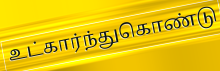
உட்கார்ந்துகொண்டு